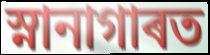
স্নানাগাৰত